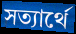
সত্যার্থে